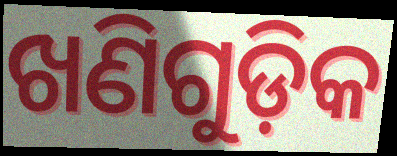
ଖଣିଗୁଡ଼ିକ